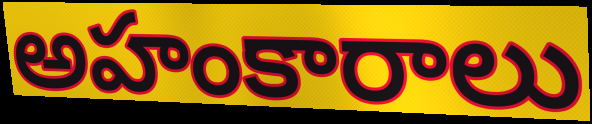
అహంకారాలు